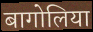
बागोलिया